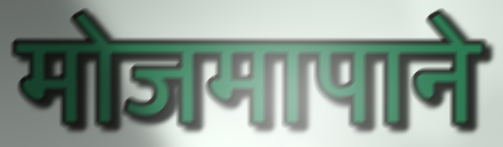
मोजमापाने